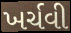
ખર્ચવી